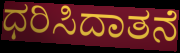
ಧರಿಸಿದಾತನೆ